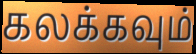
கலக்கவும்